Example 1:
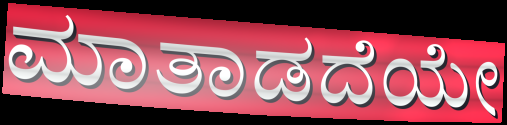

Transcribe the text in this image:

ಮಾತಾಡದೆಯೇ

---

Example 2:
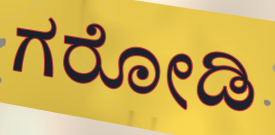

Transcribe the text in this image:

ಗರೋಡಿ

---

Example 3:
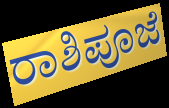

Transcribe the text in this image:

ರಾಶಿಪೂಜೆ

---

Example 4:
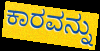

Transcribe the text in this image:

ಕಾರವನ್ನು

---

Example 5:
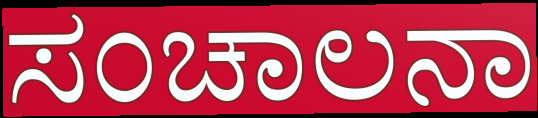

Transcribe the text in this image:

ಸಂಚಾಲನಾ